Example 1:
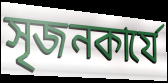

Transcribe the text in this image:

সৃজনকার্যে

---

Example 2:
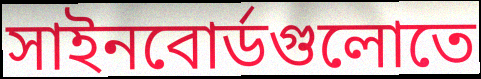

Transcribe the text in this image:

সাইনবোর্ডগুলোতে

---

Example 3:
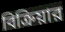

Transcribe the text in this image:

বিক্রিয়ার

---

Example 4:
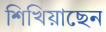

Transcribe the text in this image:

শিখিয়াছেন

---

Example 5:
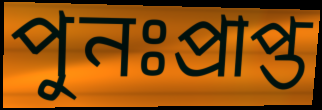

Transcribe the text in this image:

পুনঃপ্রাপ্ত